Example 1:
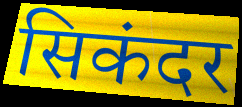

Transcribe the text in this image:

सिकंदर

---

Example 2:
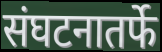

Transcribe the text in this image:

संघटनातर्फे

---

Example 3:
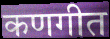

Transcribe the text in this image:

कणगीत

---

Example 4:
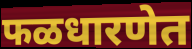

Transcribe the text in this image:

फळधारणेत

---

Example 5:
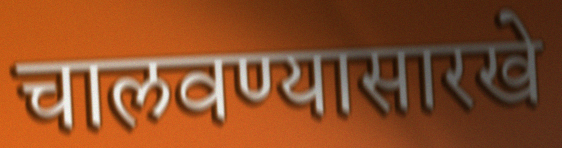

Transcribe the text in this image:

चालवण्यासारखे